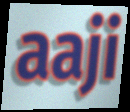
aaji